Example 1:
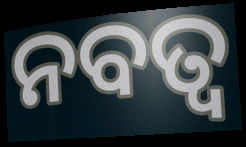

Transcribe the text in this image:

ନବତ୍ଵ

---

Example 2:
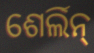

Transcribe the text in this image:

ଶେର୍ଲିନ୍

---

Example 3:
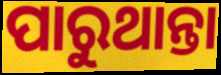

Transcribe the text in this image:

ପାରୁଥାନ୍ତା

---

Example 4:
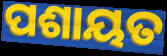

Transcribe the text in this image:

ପଶାୟତ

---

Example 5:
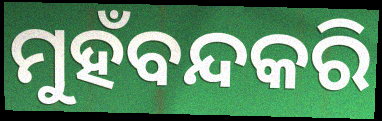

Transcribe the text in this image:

ମୁହଁବନ୍ଦକରି